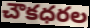
చౌకధరల